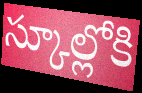
స్కూల్లోకి